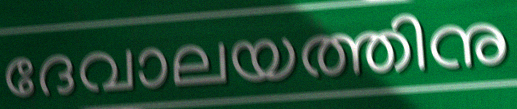
ദേവാലയത്തിനു